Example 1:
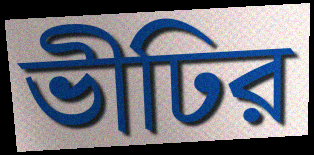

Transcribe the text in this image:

ভীঢির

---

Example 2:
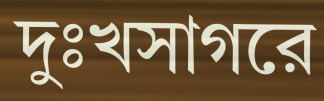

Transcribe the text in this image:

দুঃখসাগরে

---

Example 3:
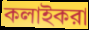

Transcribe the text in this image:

কলাইকরা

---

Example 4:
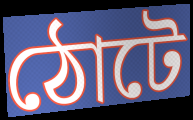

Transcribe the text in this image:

ঠোটে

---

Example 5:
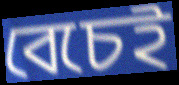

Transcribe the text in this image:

বেচেই